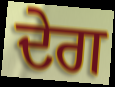
ਦੇਗ